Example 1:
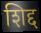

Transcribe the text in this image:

शिद्द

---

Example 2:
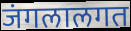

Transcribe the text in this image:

जंगलालगत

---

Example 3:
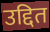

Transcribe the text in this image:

उद्दित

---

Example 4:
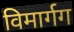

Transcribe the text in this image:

विमार्गग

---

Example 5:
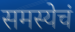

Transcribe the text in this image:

समस्येचं